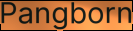
Pangborn